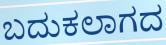
ಬದುಕಲಾಗದ